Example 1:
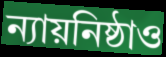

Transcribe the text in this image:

ন্যায়নিষ্ঠাও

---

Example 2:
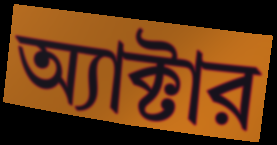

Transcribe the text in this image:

অ্যাক্টার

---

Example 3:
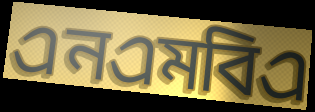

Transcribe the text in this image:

এনএমবিএ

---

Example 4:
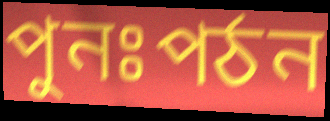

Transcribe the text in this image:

পুনঃপঠন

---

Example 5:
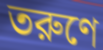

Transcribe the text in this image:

তরুণে